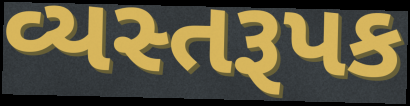
વ્યસ્તરૂપક